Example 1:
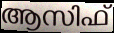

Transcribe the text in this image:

ആസിഫ്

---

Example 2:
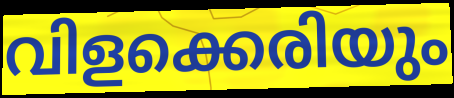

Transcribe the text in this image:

വിളക്കെരിയും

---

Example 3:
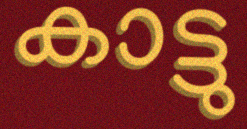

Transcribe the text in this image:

കാട്ടു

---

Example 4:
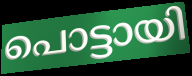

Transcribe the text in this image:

പൊട്ടായി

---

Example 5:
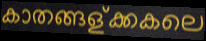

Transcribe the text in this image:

കാതങ്ങള്ക്കകലെ